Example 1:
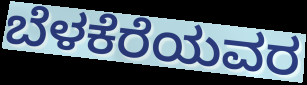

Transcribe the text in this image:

ಬೆಳಕೆರೆಯವರ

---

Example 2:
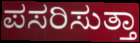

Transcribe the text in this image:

ಪಸರಿಸುತ್ತಾ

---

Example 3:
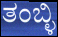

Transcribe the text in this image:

ತಂಬ್ಳಿ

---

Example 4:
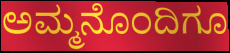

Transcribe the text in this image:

ಅಮ್ಮನೊಂದಿಗೂ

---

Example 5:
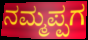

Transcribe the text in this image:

ನಮ್ಮಪ್ಪಗ